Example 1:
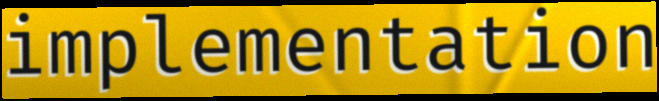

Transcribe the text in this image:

implementation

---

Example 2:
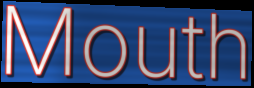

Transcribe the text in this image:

Mouth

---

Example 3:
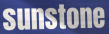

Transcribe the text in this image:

sunstone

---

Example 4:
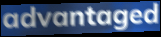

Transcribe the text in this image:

advantaged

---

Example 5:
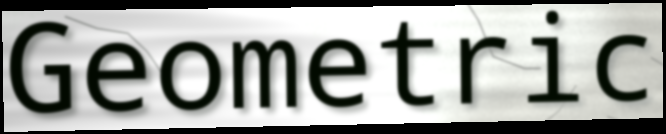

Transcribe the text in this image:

Geometric